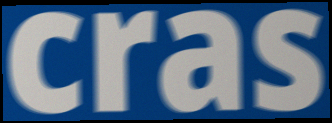
cras